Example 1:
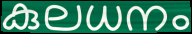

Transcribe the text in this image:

കുലധനം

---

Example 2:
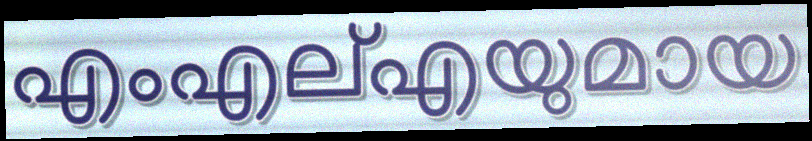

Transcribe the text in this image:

എംഎല്എയുമായ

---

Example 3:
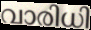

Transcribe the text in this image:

വാരിധി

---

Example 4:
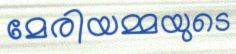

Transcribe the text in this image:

മേരിയമ്മയുടെ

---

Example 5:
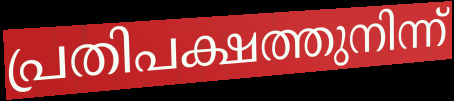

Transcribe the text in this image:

പ്രതിപക്ഷത്തുനിന്ന്